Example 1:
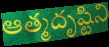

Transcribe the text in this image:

ఆత్మదృష్టిని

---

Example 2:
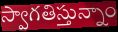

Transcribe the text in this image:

స్వాగతిస్తున్నాం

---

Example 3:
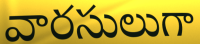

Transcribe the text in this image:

వారసులుగా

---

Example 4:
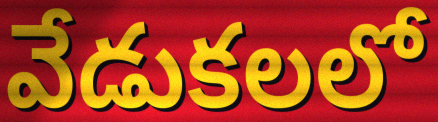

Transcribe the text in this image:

వేడుకలలో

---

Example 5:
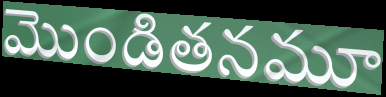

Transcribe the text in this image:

మొండితనమూ